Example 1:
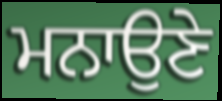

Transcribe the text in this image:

ਮਨਾਉਣੇ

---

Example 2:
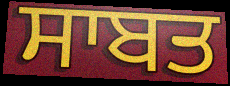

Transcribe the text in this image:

ਸਾਬਤ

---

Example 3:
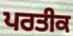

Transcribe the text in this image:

ਪਰਤੀਕ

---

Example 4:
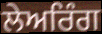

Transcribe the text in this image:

ਲੇਅਰਿੰਗ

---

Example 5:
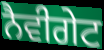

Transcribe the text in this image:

ਨੈਵੀਗੇਟ